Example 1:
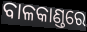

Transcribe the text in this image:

ବାଳକାଣ୍ଡରେ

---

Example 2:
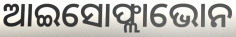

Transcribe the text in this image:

ଆଇସୋଫ୍ଲାଭୋନ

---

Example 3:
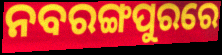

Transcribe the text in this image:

ନବରଙ୍ଗପୁରରେ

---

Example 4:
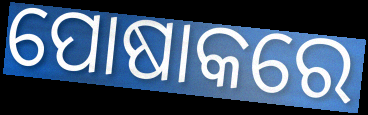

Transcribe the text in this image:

ପୋଷାକରେ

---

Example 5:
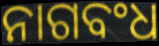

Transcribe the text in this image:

ନାଗବଂଧ